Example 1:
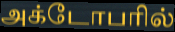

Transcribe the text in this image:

அக்டோபரில்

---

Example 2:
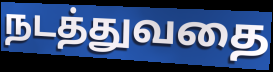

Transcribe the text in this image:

நடத்துவதை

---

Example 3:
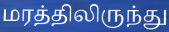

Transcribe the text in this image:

மரத்திலிருந்து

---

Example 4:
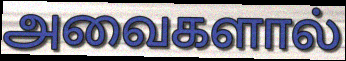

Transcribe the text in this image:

அவைகளால்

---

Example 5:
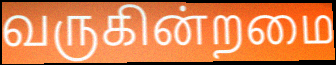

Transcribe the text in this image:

வருகின்றமை